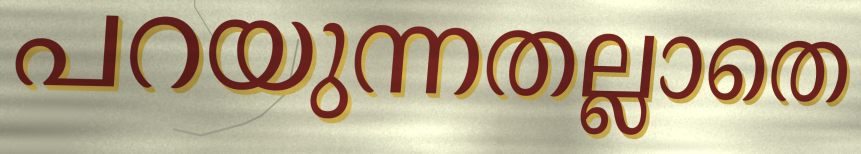
പറയുന്നതല്ലാതെ